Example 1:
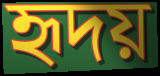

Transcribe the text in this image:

হৃদয়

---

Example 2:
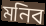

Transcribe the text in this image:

মনিব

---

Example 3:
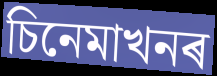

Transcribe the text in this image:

চিনেমাখনৰ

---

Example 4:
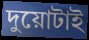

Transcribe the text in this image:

দুয়োটাই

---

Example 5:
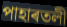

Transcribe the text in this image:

পাহাৰতলী